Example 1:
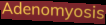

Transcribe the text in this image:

Adenomyosis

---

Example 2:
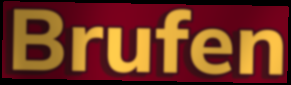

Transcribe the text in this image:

Brufen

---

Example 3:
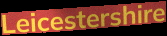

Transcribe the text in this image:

Leicestershire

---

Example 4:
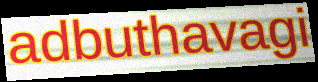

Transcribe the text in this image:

adbuthavagi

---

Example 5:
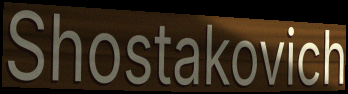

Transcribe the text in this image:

Shostakovich